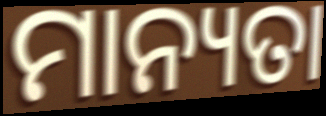
ମାନ୍ୟତା